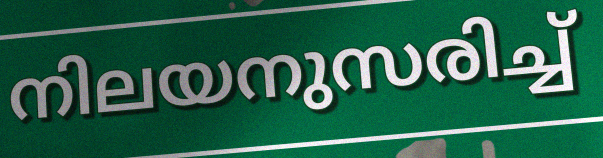
നിലയനുസരിച്ച്